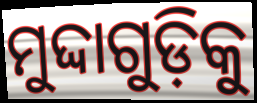
ମୁଦ୍ଦାଗୁଡ଼ିକୁ